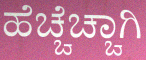
ಹೆಚ್ಚೆಚ್ಚಾಗಿ